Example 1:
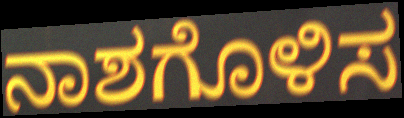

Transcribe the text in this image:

ನಾಶಗೊಳಿಸ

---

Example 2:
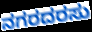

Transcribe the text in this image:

ನಗರದರಸು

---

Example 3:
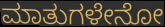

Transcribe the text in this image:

ಮಾತುಗಳೇನೋ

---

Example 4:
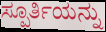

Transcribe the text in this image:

ಸ್ಪೂರ್ತಿಯನ್ನು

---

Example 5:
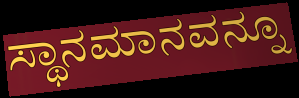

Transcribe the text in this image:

ಸ್ಥಾನಮಾನವನ್ನೂ